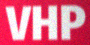
VHP